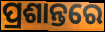
ପ୍ରଶାନ୍ତରେ